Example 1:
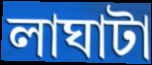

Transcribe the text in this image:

লাঘাটা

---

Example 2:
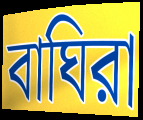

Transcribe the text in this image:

বাঘিরা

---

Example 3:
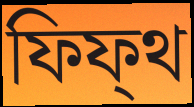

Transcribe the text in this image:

ফিফ্থ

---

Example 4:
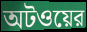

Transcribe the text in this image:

অটওয়ের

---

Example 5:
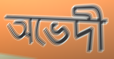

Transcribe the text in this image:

অভেদী